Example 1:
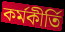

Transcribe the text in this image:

কর্মকীর্তি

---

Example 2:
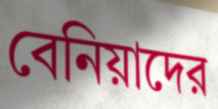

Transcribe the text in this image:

বেনিয়াদের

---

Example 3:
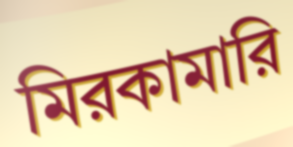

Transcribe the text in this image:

মিরকামারি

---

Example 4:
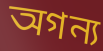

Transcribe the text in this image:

অগন্য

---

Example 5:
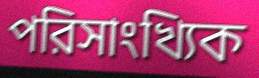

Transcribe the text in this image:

পরিসাংখ্যিক